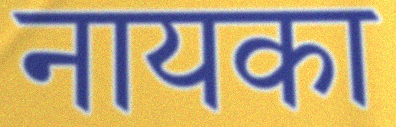
नायका